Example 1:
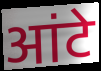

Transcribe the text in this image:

आंटे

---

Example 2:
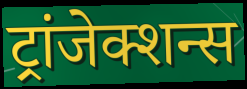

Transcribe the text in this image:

ट्रांजेक्शन्स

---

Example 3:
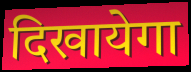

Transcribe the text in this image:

दिखायेगा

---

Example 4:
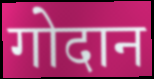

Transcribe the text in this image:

गोदान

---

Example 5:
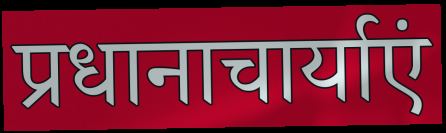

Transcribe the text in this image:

प्रधानाचार्याएं